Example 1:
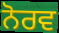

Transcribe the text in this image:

ਨੋਰਵ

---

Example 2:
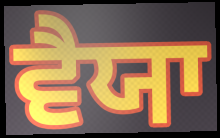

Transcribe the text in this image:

ਵੈਯਾ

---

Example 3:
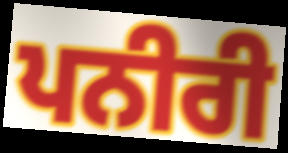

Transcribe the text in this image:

ਪਨੀਰੀ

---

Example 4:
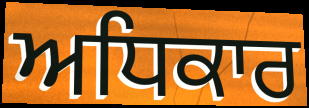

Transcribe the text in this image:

ਅਧਿਕਾਰ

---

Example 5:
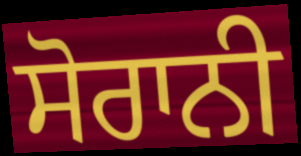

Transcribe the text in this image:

ਸੋਰਾਨੀ